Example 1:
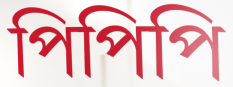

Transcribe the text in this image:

পিপিপি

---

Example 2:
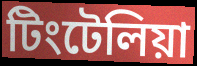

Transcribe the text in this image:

টিংটেলিয়া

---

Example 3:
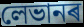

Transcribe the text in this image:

লেভানৰ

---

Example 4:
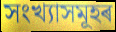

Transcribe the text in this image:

সংখ্যাসমূহৰ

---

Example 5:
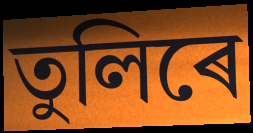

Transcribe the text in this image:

তুলিৰে